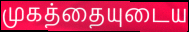
முகத்தையுடைய